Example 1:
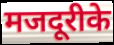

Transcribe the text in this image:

मजदूरीके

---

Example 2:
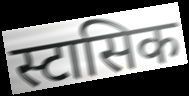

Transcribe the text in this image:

स्टासिक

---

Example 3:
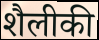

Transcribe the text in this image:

शैलीकी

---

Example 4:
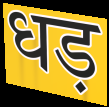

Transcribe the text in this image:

धड़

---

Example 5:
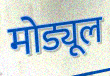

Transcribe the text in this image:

मोड्यूल